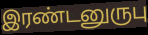
இரண்டனுருபு